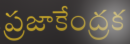
ప్రజాకేంద్రక